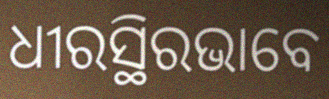
ଧୀରସ୍ଥିରଭାବେ